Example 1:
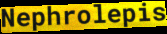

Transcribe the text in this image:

Nephrolepis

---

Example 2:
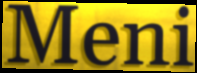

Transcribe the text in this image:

Meni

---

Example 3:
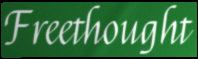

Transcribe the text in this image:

Freethought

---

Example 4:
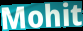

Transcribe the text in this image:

Mohit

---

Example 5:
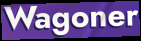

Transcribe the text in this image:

Wagoner